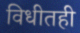
विधीतही